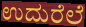
ಉದುರೆಲೆ